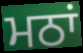
ਮਠਾਂ